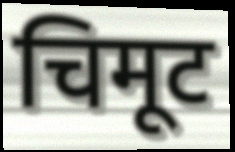
चिमूट